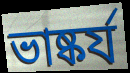
ভাষ্কর্য